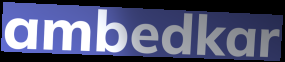
ambedkar